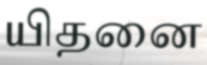
யிதனை